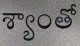
శ్యాంతో